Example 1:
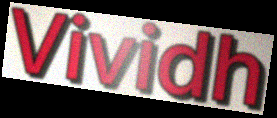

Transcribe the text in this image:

Vividh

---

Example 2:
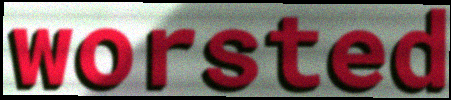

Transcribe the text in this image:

worsted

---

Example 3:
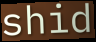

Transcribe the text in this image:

shid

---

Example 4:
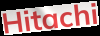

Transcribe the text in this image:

Hitachi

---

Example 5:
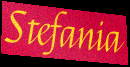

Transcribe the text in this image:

Stefania